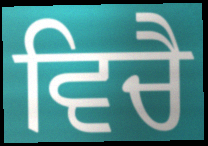
ਵਿਚੈ